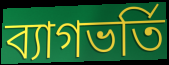
ব্যাগভর্তি